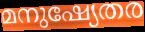
മനുഷ്യേതര